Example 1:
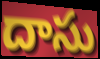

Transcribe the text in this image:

దాసు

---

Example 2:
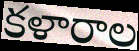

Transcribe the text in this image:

కళారాల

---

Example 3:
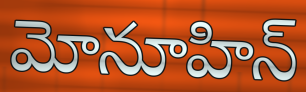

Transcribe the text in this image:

మోనూహిన్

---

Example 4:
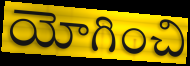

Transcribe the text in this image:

యోగించి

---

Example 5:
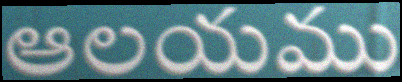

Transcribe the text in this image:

ఆలయము